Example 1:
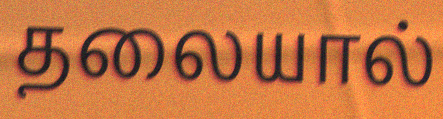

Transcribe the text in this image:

தலையால்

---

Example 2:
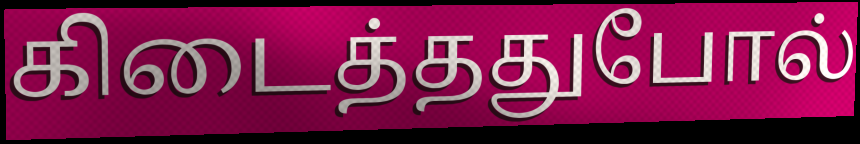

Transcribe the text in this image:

கிடைத்ததுபோல்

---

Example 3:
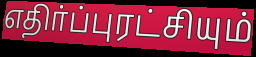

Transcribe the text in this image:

எதிர்ப்புரட்சியும்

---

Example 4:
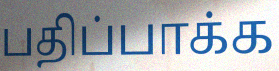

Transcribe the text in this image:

பதிப்பாக்க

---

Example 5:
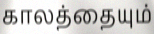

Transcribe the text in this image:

காலத்தையும்